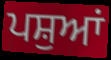
ਪਸ਼ੁਆਂ